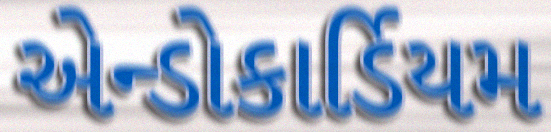
એન્ડોકાર્ડિયમ